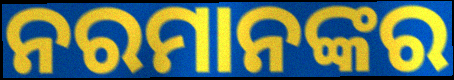
ନରମାନଙ୍କର